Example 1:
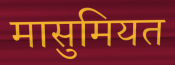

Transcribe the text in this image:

मासुमियत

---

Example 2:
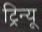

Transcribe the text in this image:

ट्रिन्यू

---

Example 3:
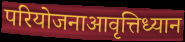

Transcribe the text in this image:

परियोजनाआवृत्तिध्यान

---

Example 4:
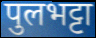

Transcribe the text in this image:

पुलभट्टा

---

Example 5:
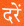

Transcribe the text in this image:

दरें